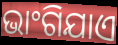
ଭାଂଗିଯାଏ